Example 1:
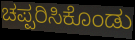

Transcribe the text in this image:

ಚಪ್ಪರಿಸಿಕೊಂಡು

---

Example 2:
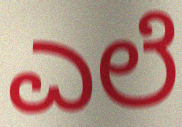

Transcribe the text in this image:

ಎಲೆ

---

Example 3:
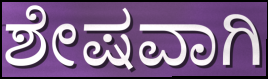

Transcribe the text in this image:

ಶೇಷವಾಗಿ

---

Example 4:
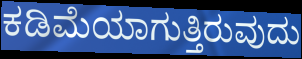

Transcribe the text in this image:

ಕಡಿಮೆಯಾಗುತ್ತಿರುವುದು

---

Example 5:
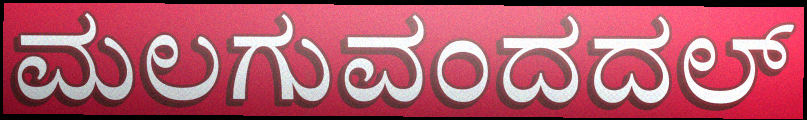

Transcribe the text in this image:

ಮಲಗುವಂದದಲ್